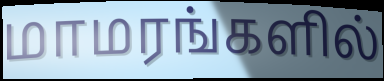
மாமரங்களில்